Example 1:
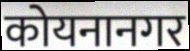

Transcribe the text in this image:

कोयनानगर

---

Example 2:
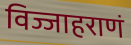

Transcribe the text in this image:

विज्जाहराणं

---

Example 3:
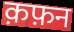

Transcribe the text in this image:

क़फ़न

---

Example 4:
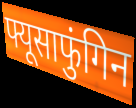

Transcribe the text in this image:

फ्यूसाफुंगिन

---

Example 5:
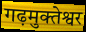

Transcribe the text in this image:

गढ़मुक्तेश्वर